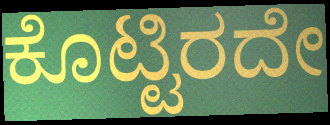
ಕೊಟ್ಟಿರದೇ